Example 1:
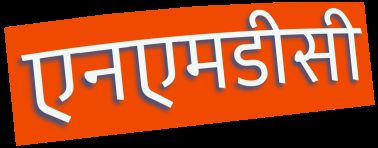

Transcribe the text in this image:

एनएमडीसी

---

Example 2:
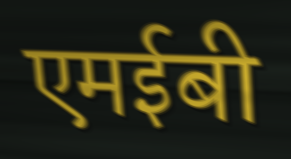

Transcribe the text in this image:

एमईबी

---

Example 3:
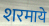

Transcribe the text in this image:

शरमाये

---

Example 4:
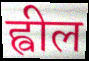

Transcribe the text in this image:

ह्वील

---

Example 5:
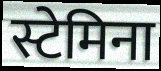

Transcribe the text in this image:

स्टेमिना